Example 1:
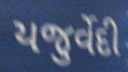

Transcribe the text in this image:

યજુર્વેદી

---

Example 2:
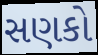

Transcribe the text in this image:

સણકો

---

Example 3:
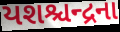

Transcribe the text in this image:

યશશ્ચન્દ્રના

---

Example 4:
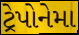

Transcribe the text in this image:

ટ્રેપોનેમા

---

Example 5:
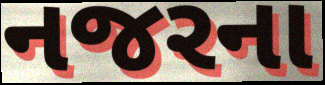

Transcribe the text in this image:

નજરના